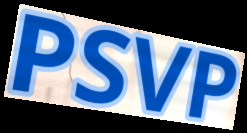
PSVP